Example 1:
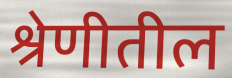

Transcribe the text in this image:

श्रेणीतील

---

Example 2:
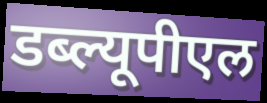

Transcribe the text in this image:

डब्ल्यूपीएल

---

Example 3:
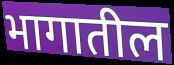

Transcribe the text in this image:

भागातील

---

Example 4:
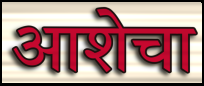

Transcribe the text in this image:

आशेचा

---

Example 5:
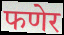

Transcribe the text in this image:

फणेर